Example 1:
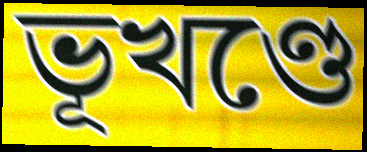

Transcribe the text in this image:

ভূখণ্ডে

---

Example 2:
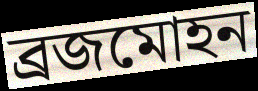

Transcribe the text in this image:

ব্রজমোহন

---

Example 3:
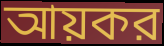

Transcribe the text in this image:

আয়কর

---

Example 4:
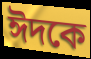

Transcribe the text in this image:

ঈদকে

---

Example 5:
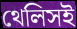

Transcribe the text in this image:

থেলিসই